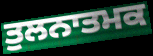
ਤੁਲਨਾਤਮਕ